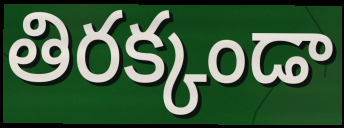
తిరక్కండా